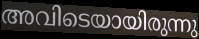
അവിടെയായിരുന്നു